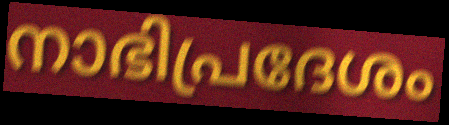
നാഭിപ്രദേശം